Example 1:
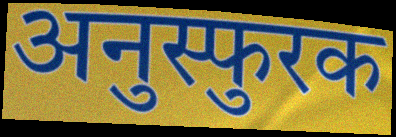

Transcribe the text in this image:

अनुस्फुरक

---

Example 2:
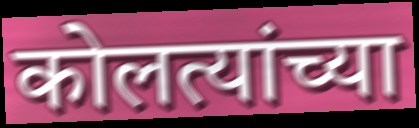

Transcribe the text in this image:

कोलत्यांच्या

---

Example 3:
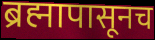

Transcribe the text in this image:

ब्रह्मापासूनच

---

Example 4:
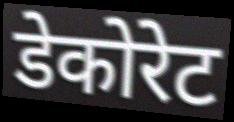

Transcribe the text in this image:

डेकोरेट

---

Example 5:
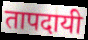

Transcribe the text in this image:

तापदायी